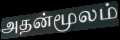
அதன்மூலம்